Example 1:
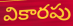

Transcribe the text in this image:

వికారపు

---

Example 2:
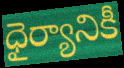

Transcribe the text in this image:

ధైర్యానికీ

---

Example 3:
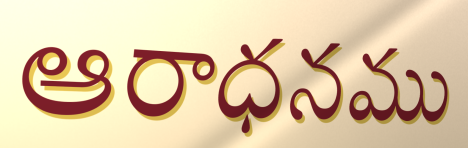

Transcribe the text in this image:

ఆరాధనము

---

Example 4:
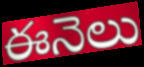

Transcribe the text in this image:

ఈనెలు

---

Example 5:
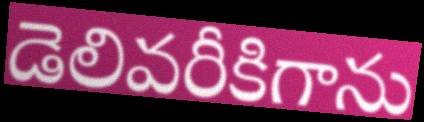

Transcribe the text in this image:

డెలివరీకిగాను